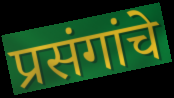
प्रसंगांचे